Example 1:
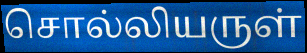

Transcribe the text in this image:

சொல்லியருள்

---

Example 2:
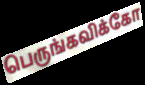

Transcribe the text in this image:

பெருங்கவிக்கோ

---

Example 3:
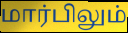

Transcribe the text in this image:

மார்பிலும்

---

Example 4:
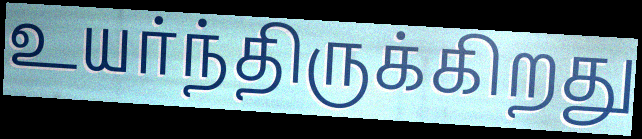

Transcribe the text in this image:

உயர்ந்திருக்கிறது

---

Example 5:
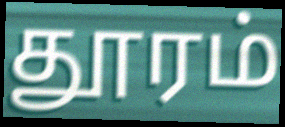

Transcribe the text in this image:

தூரம்